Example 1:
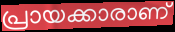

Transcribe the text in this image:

പ്രായക്കാരാണ്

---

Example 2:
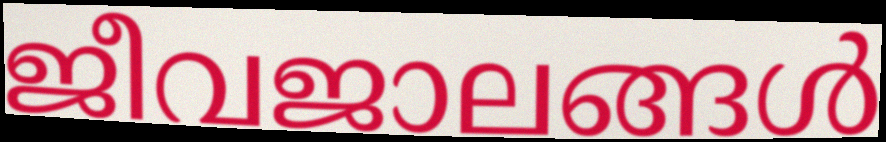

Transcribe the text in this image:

ജീവജാലങ്ങൾ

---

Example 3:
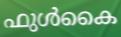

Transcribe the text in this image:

ഫുൾകൈ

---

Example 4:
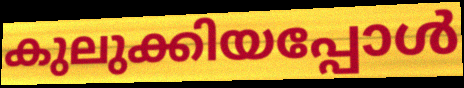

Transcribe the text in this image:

കുലുക്കിയപ്പോൾ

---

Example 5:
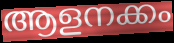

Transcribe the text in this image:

ആളനക്കം